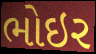
ભોઇર